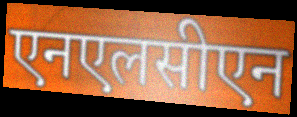
एनएलसीएन